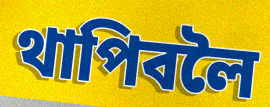
থাপিবলৈ